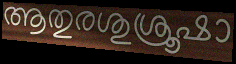
ആതുരശുശ്രൂഷാ